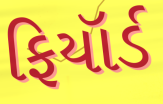
ફિયૉર્ડ